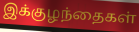
இக்குழந்தைகள்